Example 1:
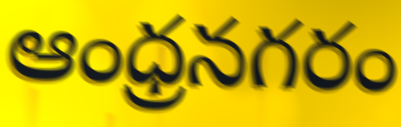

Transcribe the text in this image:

ఆంధ్రనగరం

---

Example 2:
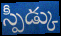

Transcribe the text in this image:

స్పీడ్కు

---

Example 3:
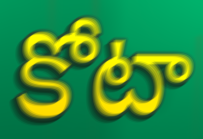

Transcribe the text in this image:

కోటా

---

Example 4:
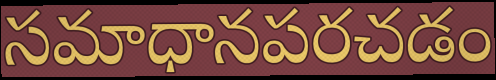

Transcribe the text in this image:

సమాధానపరచడం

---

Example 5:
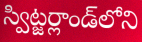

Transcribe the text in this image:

స్విట్జర్లాండ్‌లోని